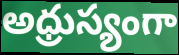
అధ్రుస్యంగా